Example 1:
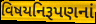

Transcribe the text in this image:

વિષયનિરૂપણનાં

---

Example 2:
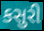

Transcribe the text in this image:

કસુરી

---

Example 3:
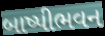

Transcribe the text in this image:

બાષ્પીભવન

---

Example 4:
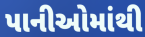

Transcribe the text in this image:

પાનીઓમાંથી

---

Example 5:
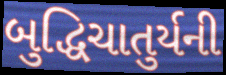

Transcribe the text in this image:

બુદ્ધિચાતુર્યની